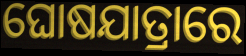
ଘୋଷଯାତ୍ରାରେ